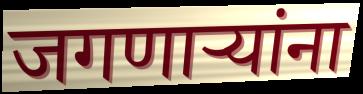
जगणाऱ्यांना